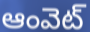
ఆంవెట్